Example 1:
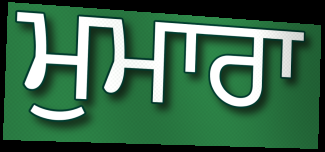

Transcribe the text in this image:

ਮੁਮਾਰਾ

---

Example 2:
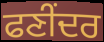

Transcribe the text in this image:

ਫਣੀਂਦਰ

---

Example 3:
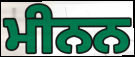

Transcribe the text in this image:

ਮੀਨਨ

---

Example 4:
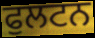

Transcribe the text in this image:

ਫੁਲਟਨ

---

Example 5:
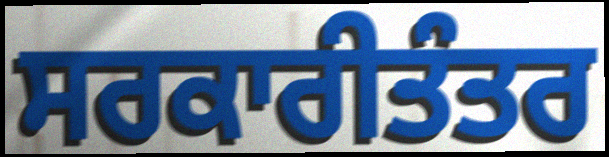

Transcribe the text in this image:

ਸਰਕਾਰੀਤੰਤਰ